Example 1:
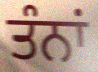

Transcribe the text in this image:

ਤੰਨਾਂ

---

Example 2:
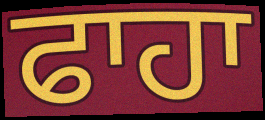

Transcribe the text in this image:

ਫਾਹਾ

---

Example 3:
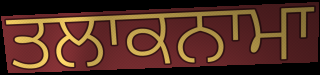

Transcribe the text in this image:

ਤਲਾਕਨਾਮਾ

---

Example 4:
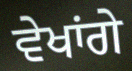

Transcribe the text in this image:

ਵੇਖਾਂਗੇ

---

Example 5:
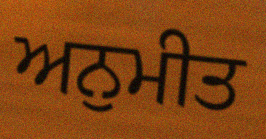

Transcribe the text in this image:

ਅਨੁਮੀਤ